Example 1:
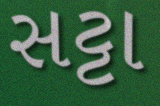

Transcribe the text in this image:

સટ્ટા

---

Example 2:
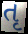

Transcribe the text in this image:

તૃ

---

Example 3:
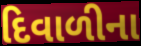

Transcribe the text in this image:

દિવાળીના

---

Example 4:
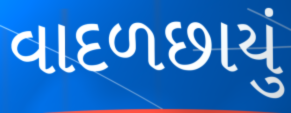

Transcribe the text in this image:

વાદળછાયું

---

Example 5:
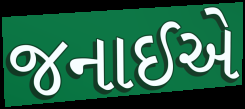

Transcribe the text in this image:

જનાઈએ